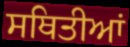
ਸਥਿਤੀਆਂ